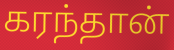
கரந்தான்